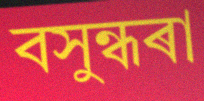
বসুন্ধৰা